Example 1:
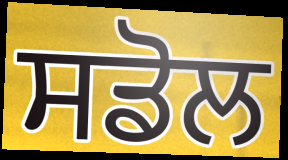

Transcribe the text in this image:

ਸਡੋਲ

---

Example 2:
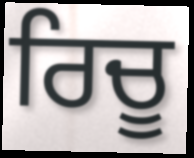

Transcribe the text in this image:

ਰਿਚੂ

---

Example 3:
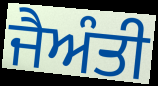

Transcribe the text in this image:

ਜੈਅੰਤੀ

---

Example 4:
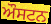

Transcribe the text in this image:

ਔਸਟਨ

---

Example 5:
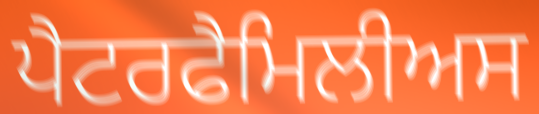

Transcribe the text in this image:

ਪੈਟਰਫੈਮਿਲੀਅਸ